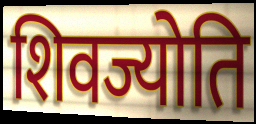
शिवज्योति